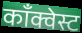
काँक्वेस्ट